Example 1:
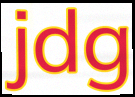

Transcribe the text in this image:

jdg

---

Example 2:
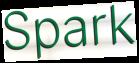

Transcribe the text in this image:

Spark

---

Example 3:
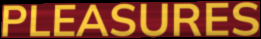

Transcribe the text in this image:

PLEASURES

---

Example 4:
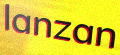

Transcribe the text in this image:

lanzan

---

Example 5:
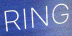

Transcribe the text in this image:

RING